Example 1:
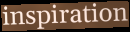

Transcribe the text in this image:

inspiration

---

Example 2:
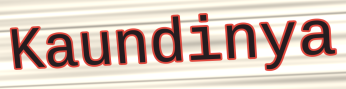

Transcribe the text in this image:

Kaundinya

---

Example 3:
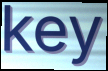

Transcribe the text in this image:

key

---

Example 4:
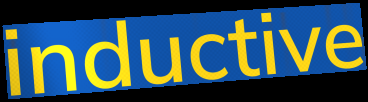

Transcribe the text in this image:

inductive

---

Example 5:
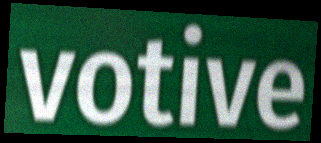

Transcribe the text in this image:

votive